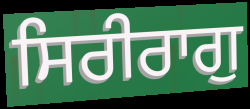
ਸਿਰੀਰਾਗੁ